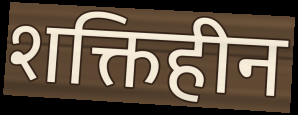
शक्तिहीन